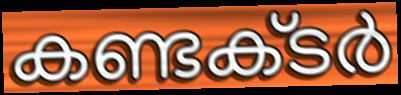
കണ്ടക്‌ടർ